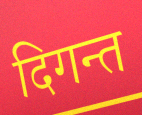
दिगन्त